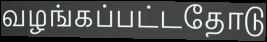
வழங்கப்பட்டதோடு